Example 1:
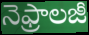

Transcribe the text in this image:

నెఫ్రాలజీ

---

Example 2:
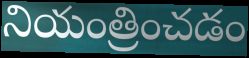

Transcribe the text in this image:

నియంత్రించడం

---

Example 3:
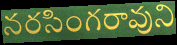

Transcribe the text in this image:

నరసింగరావుని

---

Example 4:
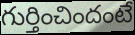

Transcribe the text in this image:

గుర్తించిందంటే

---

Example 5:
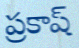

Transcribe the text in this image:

ప్రకాష్